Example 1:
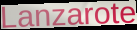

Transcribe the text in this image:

Lanzarote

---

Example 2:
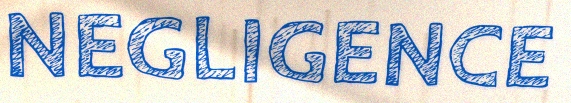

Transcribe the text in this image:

NEGLIGENCE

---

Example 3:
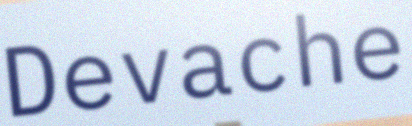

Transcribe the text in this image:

Devache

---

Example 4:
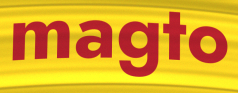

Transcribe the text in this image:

magto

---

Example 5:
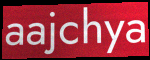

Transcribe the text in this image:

aajchya